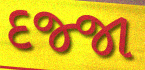
દજ્જા